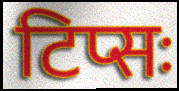
टिप्सः